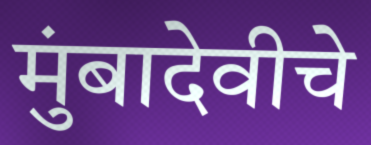
मुंबादेवीचे